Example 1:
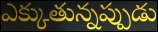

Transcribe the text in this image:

ఎక్కుతున్నప్పుడు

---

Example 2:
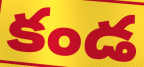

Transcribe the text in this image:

కండ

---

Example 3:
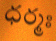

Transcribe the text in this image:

ధర్మః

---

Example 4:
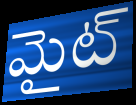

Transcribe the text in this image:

మైట్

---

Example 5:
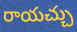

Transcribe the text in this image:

రాయచ్చు